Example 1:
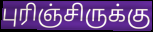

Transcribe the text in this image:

புரிஞ்சிருக்கு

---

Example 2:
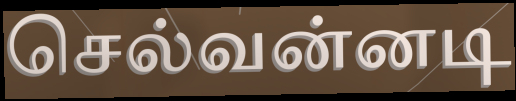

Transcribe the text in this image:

செல்வன்னடி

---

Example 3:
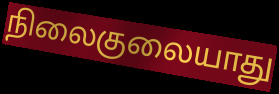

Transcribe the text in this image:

நிலைகுலையாது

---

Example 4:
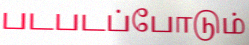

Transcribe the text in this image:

படபடப்போடும்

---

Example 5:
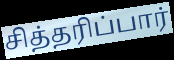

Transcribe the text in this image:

சித்தரிப்பார்